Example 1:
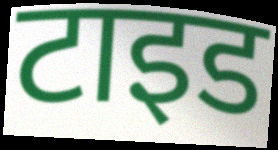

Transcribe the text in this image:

टाइड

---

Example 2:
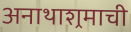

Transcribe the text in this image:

अनाथाश्रमाची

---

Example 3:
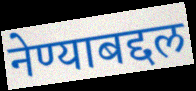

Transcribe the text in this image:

नेण्याबद्दल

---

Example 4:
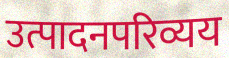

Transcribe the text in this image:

उत्पादनपरिव्यय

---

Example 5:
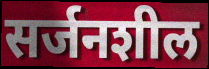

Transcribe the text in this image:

सर्जनशील